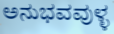
ಅನುಭವವುಳ್ಳ